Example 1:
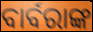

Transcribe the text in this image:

ବାର୍ବରାଙ୍କ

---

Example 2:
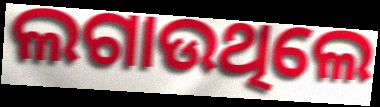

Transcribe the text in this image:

ଲଗାଉଥିଲେ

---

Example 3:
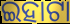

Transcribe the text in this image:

ଇହାଟା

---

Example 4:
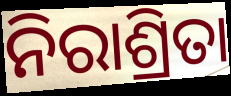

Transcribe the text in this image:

ନିରାଶ୍ରିତା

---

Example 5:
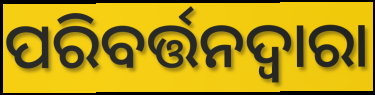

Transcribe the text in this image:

ପରିବର୍ତ୍ତନଦ୍ୱାରା